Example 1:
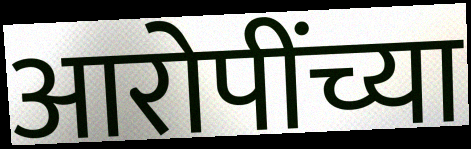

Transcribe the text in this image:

आरोपींच्या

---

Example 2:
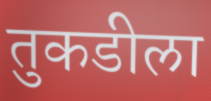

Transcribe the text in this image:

तुकडीला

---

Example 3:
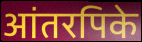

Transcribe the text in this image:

आंतरपिके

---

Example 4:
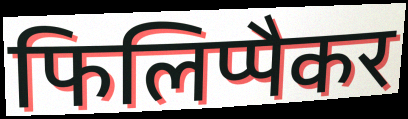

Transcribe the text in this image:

फिलिप्पैकर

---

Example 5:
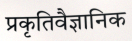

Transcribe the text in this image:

प्रकृतिवैज्ञानिक